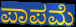
ಪಾಪಮೆ